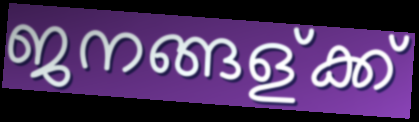
ജനങ്ങള്ക്ക്